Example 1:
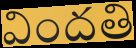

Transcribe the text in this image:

విందతి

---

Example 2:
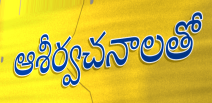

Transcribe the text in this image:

ఆశీర్వచనాలతో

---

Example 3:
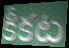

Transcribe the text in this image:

కీకట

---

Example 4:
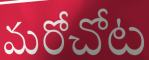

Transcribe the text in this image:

మరోచోట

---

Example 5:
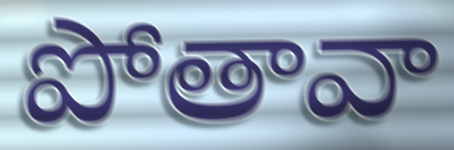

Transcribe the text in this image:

పోతావా